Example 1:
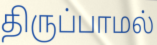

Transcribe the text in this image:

திருப்பாமல்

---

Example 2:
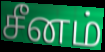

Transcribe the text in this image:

சீனம்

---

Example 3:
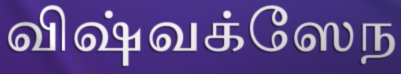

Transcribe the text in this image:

விஷ்வக்ஸேந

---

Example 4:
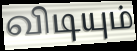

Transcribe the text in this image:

விடியும்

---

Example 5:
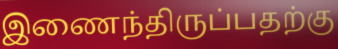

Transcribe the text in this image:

இணைந்திருப்பதற்கு